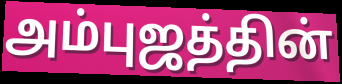
அம்புஜத்தின்